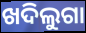
ଖଦିଲୁଗା